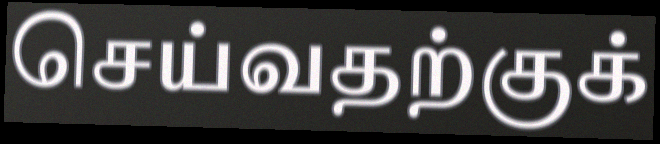
செய்வதற்குக்